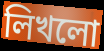
লিখলো